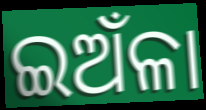
ଇଅଁଳା